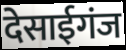
देसाईगंज